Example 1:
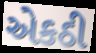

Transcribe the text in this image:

એકઠી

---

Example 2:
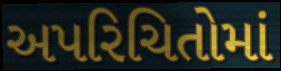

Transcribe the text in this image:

અપરિચિતોમાં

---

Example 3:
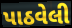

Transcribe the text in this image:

પાઠવેલી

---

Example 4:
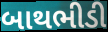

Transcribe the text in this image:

બાથભીડી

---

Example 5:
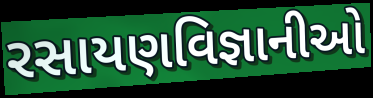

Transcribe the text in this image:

રસાયણવિજ્ઞાનીઓ